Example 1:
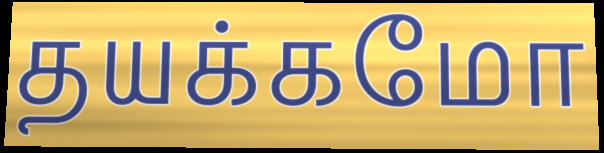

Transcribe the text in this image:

தயக்கமோ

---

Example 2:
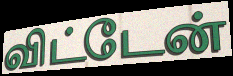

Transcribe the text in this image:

விட்டேன்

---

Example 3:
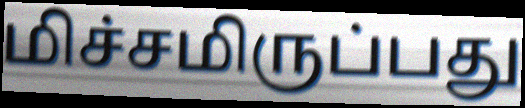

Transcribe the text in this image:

மிச்சமிருப்பது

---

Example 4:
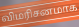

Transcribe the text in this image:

விமரிசனமாக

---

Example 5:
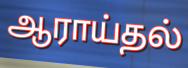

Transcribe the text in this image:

ஆராய்தல்